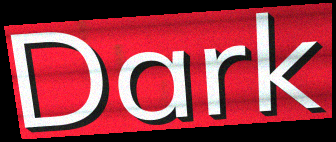
Dark